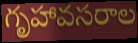
గృహావసరాల